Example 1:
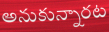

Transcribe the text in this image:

అనుకున్నారట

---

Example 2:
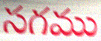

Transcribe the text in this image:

సగము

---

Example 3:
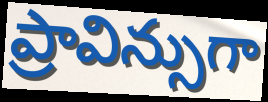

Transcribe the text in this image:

ప్రావిన్సుగా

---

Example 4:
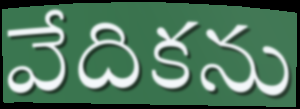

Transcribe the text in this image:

వేదికను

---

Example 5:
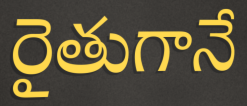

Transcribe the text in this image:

రైతుగానే